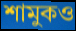
শামুকও